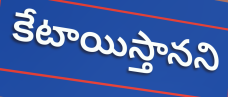
కేటాయిస్తానని